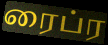
ரைப்ர